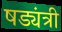
षड्यंत्री